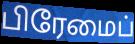
பிரேமைப்